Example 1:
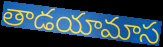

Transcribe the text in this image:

తాడయామాస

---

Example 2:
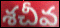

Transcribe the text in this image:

శచీవ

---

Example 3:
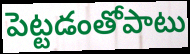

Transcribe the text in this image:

పెట్టడంతోపాటు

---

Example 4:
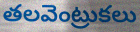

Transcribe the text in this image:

తలవెంట్రుకలు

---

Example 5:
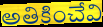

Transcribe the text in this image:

అతికించేవి